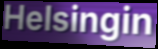
Helsingin